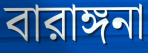
বারাঙ্গনা